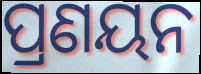
ପ୍ରଣୟନ